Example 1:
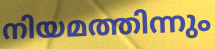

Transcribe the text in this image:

നിയമത്തിന്നും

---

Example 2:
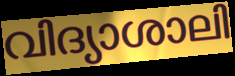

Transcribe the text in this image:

വിദ്യാശാലി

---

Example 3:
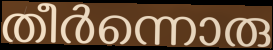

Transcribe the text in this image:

തീർന്നൊരു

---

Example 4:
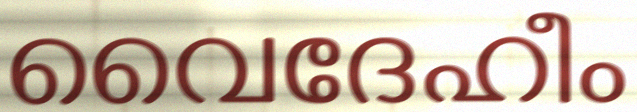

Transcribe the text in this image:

വൈദേഹീം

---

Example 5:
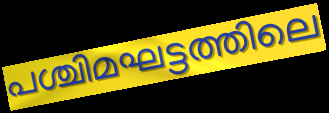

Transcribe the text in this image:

പശ്ചിമഘട്ടത്തിലെ